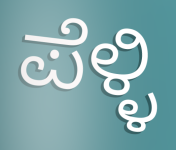
ಪೆಳ್ಳಿ